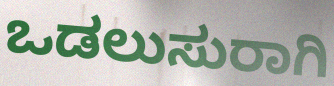
ಒಡಲುಸುರಾಗಿ